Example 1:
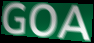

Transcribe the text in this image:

GOA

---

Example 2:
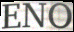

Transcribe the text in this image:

ENO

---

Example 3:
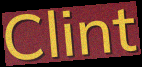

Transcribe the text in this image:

Clint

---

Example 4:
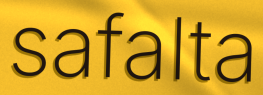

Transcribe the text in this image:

safalta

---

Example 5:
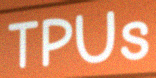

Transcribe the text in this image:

TPUs